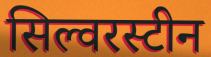
सिल्वरस्टीन